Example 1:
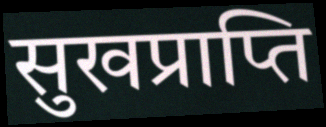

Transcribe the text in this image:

सुखप्राप्ति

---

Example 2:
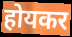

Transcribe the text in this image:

होयकर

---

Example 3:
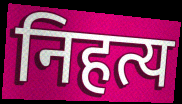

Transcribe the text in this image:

निहत्य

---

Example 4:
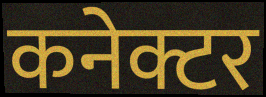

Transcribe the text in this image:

कनेक्टर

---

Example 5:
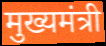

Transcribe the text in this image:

मुख्यमंत्री